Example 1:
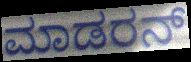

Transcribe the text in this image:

ಮಾಡರನ್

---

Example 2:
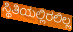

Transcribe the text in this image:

ಸ್ಥಿತಿಯಲ್ಲಿರಲಿಲ್ಲ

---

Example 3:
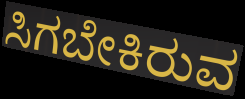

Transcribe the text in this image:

ಸಿಗಬೇಕಿರುವ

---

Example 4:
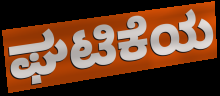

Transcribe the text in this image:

ಘಟಿಕೆಯ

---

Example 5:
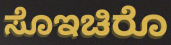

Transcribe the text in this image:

ಸೊಇಚಿರೊ